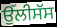
ਉੱਲੀਸੱਸ